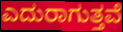
ಎದುರಾಗುತ್ತವೆ